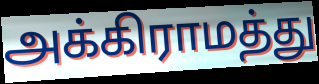
அக்கிராமத்து